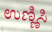
ಉಣ್ಣಿಸಿ